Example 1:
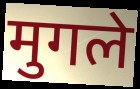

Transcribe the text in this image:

मुगले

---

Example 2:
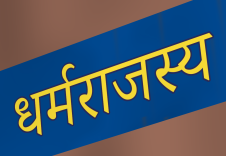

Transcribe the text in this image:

धर्मराजस्य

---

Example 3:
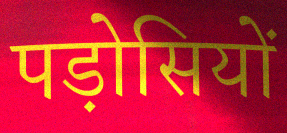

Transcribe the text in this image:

पड़ोसियों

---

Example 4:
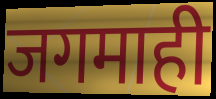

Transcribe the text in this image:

जगमाही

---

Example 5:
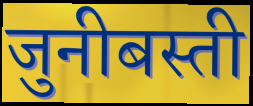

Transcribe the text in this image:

जुनीबस्ती